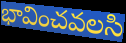
భావించవలసి